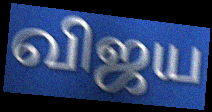
விஜய